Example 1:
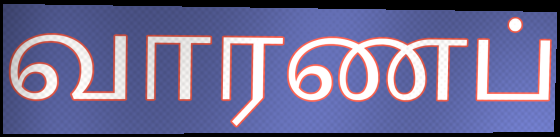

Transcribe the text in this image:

வாரணப்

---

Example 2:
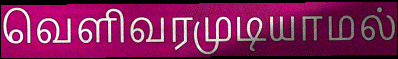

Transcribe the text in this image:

வெளிவரமுடியாமல்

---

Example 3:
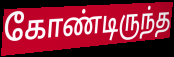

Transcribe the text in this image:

கோண்டிருந்த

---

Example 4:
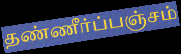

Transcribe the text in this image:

தண்ணீர்ப்பஞ்சம்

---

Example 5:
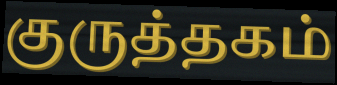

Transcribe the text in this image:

குருத்தகம்